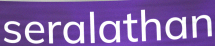
seralathan